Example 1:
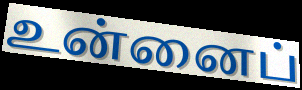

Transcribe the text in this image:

உன்னைப்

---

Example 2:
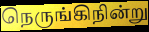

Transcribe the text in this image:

நெருங்கிநின்று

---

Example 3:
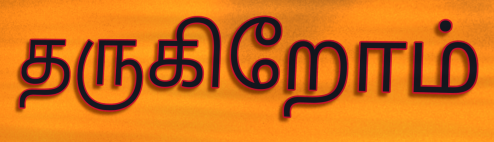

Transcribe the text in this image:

தருகிறோம்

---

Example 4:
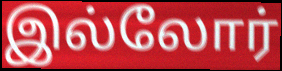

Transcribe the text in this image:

இல்லோர்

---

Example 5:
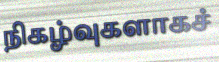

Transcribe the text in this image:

நிகழ்வுகளாகச்